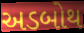
અડબોથ